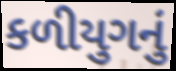
કળીયુગનું